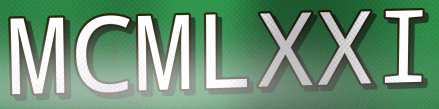
MCMLXXI